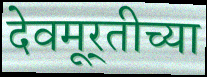
देवमूर्तीच्या